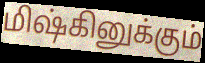
மிஷ்கினுக்கும்